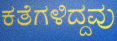
ಕತೆಗಳಿದ್ದವು